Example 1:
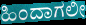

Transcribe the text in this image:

ಹಿಂದಾಗಲೀ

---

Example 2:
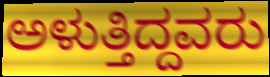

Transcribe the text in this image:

ಅಳುತ್ತಿದ್ದವರು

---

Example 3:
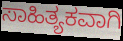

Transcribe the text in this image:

ಸಾಹಿತ್ಯಕವಾಗಿ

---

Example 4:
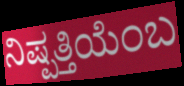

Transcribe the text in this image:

ನಿಷ್ಪತ್ತಿಯೆಂಬ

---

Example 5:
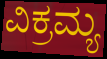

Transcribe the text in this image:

ವಿಕ್ರಮ್ಯ